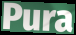
Pura